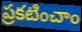
ప్రకటించాం